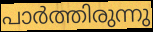
പാർത്തിരുന്നു